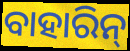
ବାହାରିନ୍